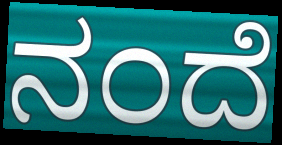
ನಂದೆ